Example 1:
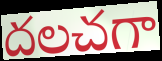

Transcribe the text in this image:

దలచగా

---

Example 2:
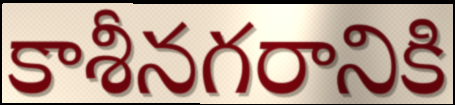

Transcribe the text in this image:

కాశీనగరానికి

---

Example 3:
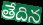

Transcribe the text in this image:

తేదిన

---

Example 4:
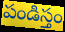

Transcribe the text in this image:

పండిస్తం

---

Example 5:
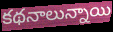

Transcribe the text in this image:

కథనాలున్నాయి